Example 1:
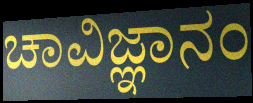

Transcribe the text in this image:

ಚಾವಿಜ್ಞಾನಂ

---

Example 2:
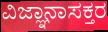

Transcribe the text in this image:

ವಿಜ್ಞಾನಾಸಕ್ತರ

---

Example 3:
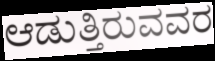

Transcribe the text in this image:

ಆಡುತ್ತಿರುವವರ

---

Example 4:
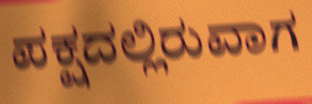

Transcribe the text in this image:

ಪಕ್ಷದಲ್ಲಿರುವಾಗ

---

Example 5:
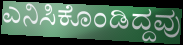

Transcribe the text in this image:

ಎನಿಸಿಕೊಂಡಿದ್ದವು